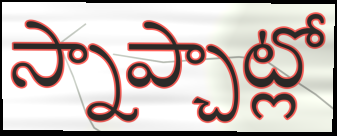
స్నాప్చాట్లో